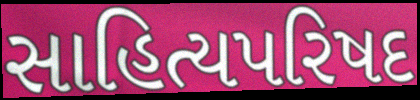
સાહિત્યપરિષદ